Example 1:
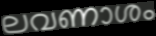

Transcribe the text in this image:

ലവണാശം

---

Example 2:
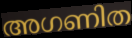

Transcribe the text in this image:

അഗണിത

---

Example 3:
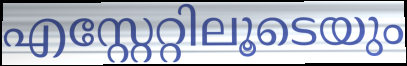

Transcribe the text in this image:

എസ്റ്റേറ്റിലൂടെയും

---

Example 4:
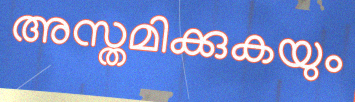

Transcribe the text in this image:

അസ്തമിക്കുകയും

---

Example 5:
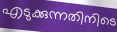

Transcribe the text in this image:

എടുക്കുന്നതിനിടെ